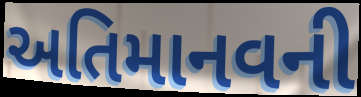
અતિમાનવની